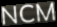
NCM